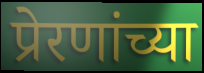
प्रेरणांच्या